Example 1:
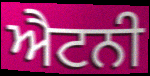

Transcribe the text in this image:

ਐਟਨੀ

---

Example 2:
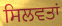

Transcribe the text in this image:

ਸਿਲਵਤਾਂ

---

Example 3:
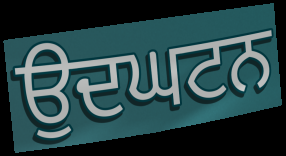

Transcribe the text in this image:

ਉਦਘਟਨ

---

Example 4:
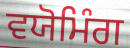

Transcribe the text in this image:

ਵਯੋਮਿੰਗ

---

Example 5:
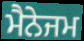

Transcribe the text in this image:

ਮੈਨੇਜਮ